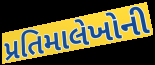
પ્રતિમાલેખોની